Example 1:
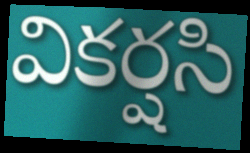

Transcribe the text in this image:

వికర్షసి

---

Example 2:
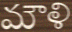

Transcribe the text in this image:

మౌళి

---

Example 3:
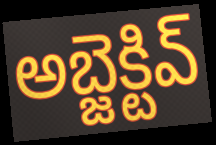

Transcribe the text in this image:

అబ్జెక్టివ్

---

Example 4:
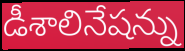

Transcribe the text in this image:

డీశాలినేషన్ను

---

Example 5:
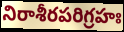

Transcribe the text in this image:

నిరాశీరపరిగ్రహః